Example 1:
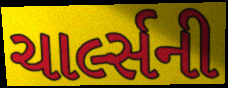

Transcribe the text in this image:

ચાર્લ્સની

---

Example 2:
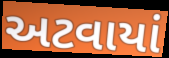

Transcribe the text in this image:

અટવાયાં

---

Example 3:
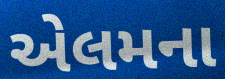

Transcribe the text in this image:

એલમના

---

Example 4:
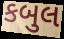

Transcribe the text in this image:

કબુલ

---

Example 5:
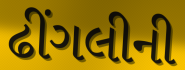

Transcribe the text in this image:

ઢીંગલીની